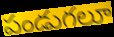
పండుగలూ